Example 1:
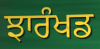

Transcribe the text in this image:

ਝਾਰੰਖਡ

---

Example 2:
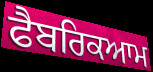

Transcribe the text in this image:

ਫੈਬਰਿਕਆਮ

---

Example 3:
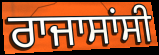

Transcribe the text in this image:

ਰਾਜਾਸਾਂਸੀ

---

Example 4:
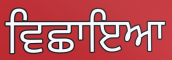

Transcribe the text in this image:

ਵਿਛਾਇਆ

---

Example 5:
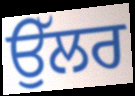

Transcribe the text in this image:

ਉੱਲਰ